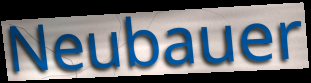
Neubauer